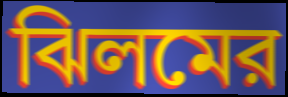
ঝিলমের